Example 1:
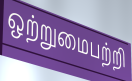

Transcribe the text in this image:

ஒற்றுமைபற்றி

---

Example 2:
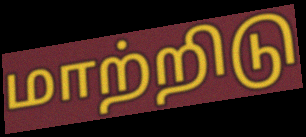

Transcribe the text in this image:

மாற்றிடு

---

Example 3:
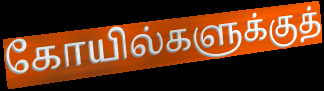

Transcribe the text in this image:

கோயில்களுக்குத்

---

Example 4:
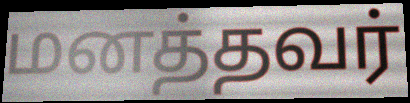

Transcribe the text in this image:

மனத்தவர்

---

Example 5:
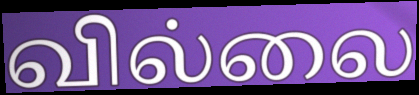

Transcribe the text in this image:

வில்லை